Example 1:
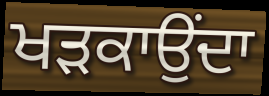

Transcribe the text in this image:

ਖੜਕਾਉਂਦਾ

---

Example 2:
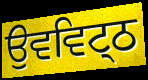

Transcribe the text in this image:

ਉਵਵਿਟ੍ਠ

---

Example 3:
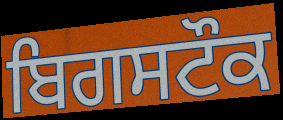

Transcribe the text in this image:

ਬਿਗਸਟੌਕ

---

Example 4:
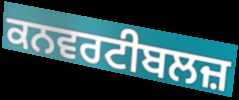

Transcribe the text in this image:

ਕਨਵਰਟੀਬਲਜ਼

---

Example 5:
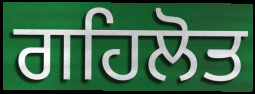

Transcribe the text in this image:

ਗਹਿਲੋਤ